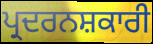
ਪ੍ਰਦਰਨਸ਼ਕਾਰੀ